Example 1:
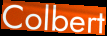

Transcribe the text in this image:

Colbert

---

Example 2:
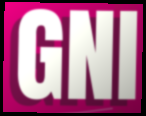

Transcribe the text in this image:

GNI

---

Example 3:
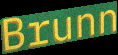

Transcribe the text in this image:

Brunn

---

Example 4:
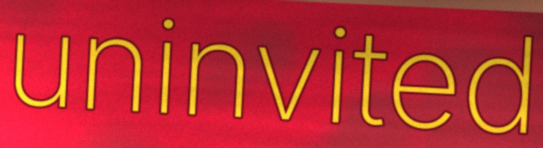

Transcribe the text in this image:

uninvited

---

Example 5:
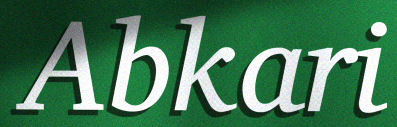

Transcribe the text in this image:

Abkari